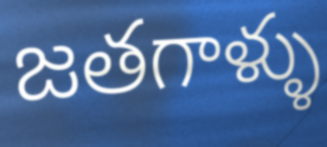
జతగాళ్ళు